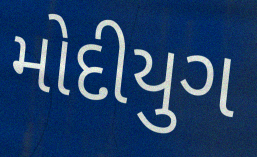
મોદીયુગ